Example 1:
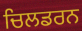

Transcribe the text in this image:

ਚਿਲਡਰਨ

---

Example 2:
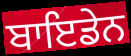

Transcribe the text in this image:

ਬਾਇਡੇਨ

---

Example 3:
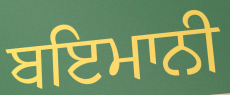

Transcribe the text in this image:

ਬਇਮਾਨੀ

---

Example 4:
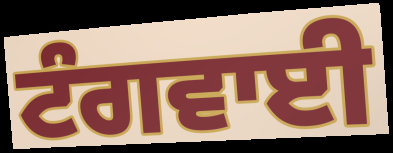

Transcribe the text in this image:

ਟੰਗਵਾਈ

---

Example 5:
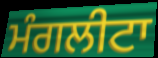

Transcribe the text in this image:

ਮੰਗਲੀਟਾ